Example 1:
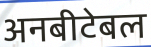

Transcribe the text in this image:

अनबीटेबल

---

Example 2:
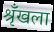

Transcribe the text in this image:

श्रृँखला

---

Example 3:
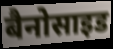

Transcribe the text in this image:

बैनोसाइड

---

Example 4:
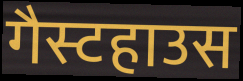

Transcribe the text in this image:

गैस्टहाउस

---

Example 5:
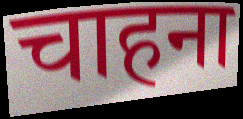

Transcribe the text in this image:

चाहना